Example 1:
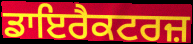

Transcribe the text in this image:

ਡਾਇਰੈਕਟਰਜ਼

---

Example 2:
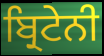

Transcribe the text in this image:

ਬ੍ਰਿਟੇਨੀ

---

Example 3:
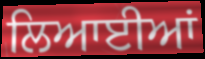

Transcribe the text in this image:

ਲਿਆਈਆਂ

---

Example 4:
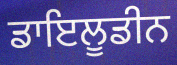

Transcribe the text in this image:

ਡਾਇਲੂਡੀਨ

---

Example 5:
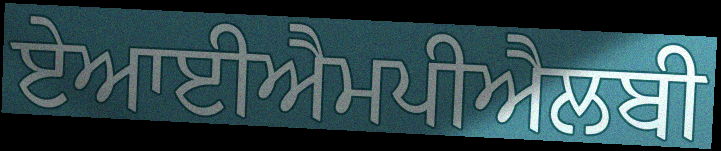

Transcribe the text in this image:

ਏਆਈਐਮਪੀਐਲਬੀ